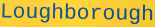
Loughborough